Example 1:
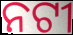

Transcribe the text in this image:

ନଟୀ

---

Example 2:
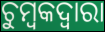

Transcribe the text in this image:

ଚୁମ୍ବକଦ୍ବାରା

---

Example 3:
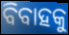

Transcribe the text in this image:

ବିବାହକୁ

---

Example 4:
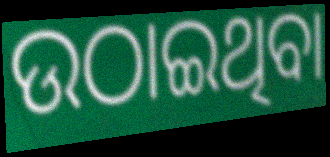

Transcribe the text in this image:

ଉଠାଇଥିବା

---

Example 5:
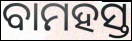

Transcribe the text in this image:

ବାମହସ୍ତ